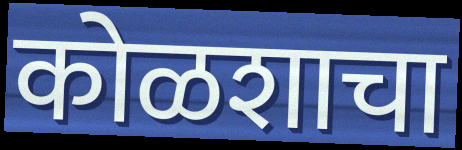
कोळशाचा